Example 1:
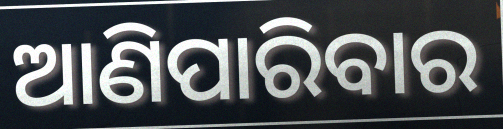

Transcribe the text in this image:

ଆଣିପାରିବାର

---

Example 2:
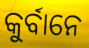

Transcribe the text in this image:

କୁର୍ବାନେ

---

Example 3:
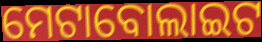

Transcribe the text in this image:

ମେଟାବୋଲାଇଟ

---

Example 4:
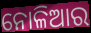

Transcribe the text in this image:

ନୋଳିଆର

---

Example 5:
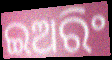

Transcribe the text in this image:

ଇଅରିଂ